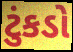
ટુંકડો